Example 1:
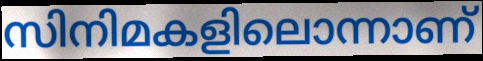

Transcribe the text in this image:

സിനിമകളിലൊന്നാണ്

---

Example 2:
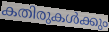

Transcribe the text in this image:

കതിരുകൾക്കും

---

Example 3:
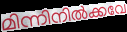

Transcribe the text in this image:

മിന്നിനിൽക്കവേ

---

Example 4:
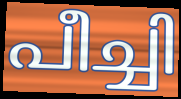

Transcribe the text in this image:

പീച്ചി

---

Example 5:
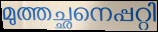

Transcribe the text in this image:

മുത്തച്ഛനെപ്പറ്റി